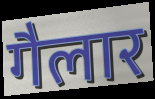
गैलार